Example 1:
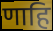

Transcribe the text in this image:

णाहि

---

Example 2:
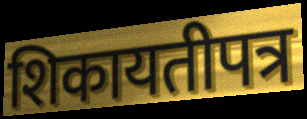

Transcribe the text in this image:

शिकायतीपत्र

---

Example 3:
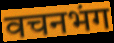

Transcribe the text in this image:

वचनभंग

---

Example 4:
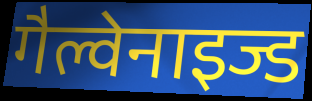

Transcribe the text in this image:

गैल्वेनाइज्ड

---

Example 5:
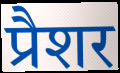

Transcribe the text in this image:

प्रैशर